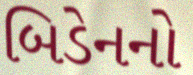
બિડેનનો